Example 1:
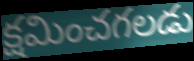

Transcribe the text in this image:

క్షమించగలడు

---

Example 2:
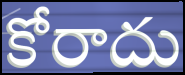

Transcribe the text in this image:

కోరాదు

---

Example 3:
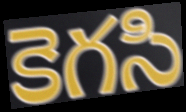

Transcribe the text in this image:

కెగసి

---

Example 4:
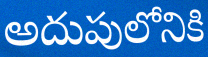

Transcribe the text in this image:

అదుపులోనికి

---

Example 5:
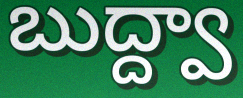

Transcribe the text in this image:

బుద్ద్వా